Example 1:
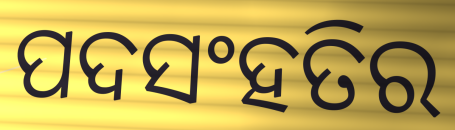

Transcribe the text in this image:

ପଦସଂହତିର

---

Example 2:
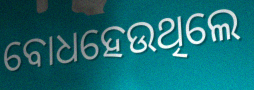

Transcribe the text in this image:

ବୋଧହେଉଥିଲେ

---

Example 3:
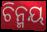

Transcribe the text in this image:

ଚିନ୍ମୟ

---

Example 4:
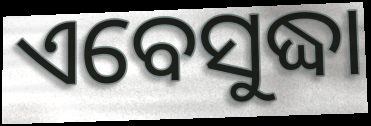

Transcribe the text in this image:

ଏବେସୁଦ୍ଧା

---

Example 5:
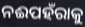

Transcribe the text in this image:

ନଈପହଁରାକୁ